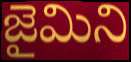
జైమిని